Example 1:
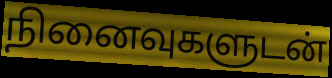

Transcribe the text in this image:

நினைவுகளுடன்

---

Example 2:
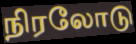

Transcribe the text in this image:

நிரலோடு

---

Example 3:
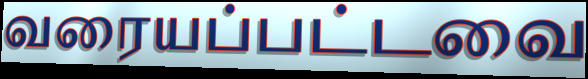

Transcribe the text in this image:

வரையப்பட்டவை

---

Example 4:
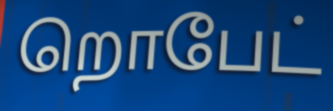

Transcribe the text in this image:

றொபேட்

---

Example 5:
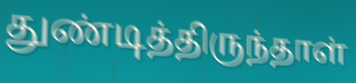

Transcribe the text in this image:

துண்டித்திருந்தாள்